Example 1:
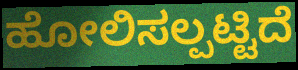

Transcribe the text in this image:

ಹೋಲಿಸಲ್ಪಟ್ಟಿದೆ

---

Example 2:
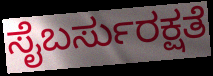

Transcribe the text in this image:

ಸೈಬರ್ಸುರಕ್ಷತೆ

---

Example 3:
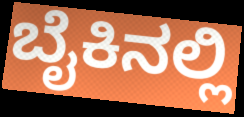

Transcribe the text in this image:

ಬೈಕಿನಲ್ಲಿ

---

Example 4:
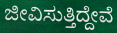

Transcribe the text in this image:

ಜೀವಿಸುತ್ತಿದ್ದೇವೆ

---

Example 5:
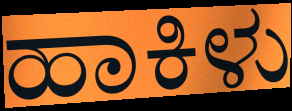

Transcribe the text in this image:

ಹಾಕಿಳು